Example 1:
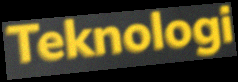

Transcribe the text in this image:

Teknologi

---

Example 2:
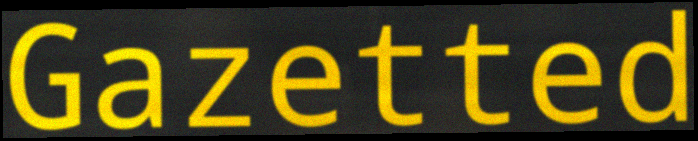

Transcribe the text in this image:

Gazetted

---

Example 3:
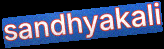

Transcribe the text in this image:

sandhyakali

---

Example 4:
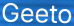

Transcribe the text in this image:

Geeto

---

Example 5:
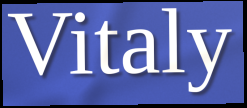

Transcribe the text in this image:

Vitaly